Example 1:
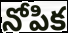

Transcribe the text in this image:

నోపిక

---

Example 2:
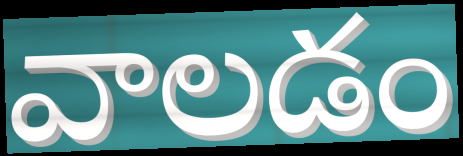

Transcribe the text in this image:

వాలడం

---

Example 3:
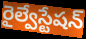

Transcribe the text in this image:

రైల్వేస్టేషన్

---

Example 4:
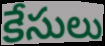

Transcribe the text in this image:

కేసులు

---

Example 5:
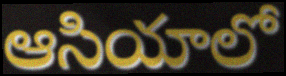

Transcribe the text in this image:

ఆసియాలో